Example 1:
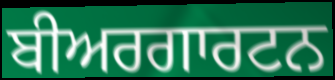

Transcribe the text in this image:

ਬੀਅਰਗਾਰਟਨ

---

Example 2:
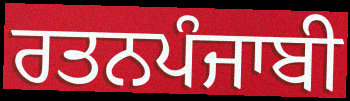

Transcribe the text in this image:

ਰਤਨਪੰਜਾਬੀ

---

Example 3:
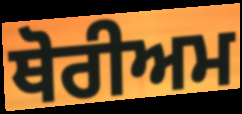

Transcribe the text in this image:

ਥੋਰੀਅਮ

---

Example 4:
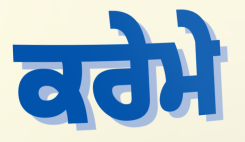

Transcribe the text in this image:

ਕਰੇਮੇ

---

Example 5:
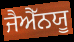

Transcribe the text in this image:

ਜੈਐੱਨਯੂ